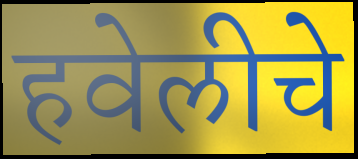
हवेलीचे